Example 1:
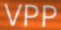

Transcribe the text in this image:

VPP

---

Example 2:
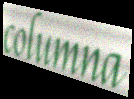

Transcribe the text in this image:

columna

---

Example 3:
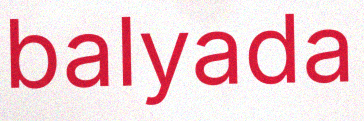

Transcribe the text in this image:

balyada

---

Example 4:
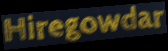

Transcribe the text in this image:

Hiregowdar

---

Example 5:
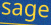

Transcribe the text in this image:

sage